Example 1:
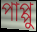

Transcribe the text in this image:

পাপ্পু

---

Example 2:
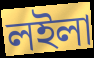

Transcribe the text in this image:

লইলা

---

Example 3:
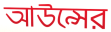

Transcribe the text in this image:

আউন্সের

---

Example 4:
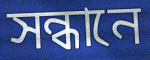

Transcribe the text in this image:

সন্ধানে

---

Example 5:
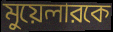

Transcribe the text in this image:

মুয়েলারকে